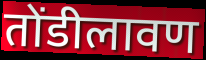
तोंडीलावण